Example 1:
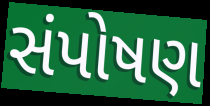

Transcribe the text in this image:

સંપોષણ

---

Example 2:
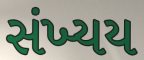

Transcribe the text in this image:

સંખ્યય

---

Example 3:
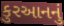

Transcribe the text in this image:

કુરઆનનું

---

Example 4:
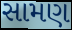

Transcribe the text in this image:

સામણ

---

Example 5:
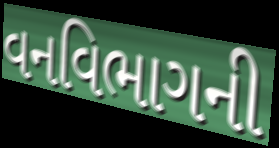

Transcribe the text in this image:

વનવિભાગની